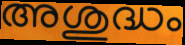
അശുദ്ധം